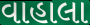
વાહાલા